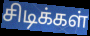
சிடிக்கள்